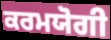
ਕਰਮਯੋਗੀ